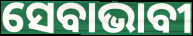
ସେବାଭାବୀ